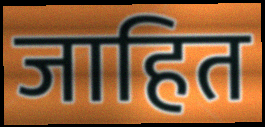
जाहित